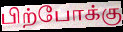
பிற்போக்கு